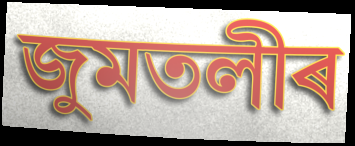
জুমতলীৰ